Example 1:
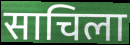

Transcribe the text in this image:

साचिला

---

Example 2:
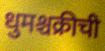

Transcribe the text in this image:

धुमश्चक्रीची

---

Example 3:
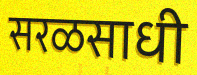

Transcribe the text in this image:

सरळसाधी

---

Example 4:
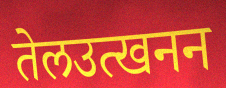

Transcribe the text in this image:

तेलउत्खनन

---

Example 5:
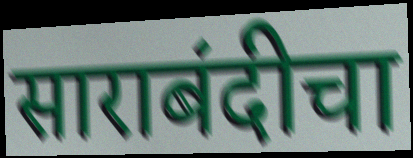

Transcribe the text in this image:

साराबंदीचा